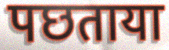
पछताया